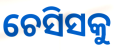
ଚେସିସକୁ